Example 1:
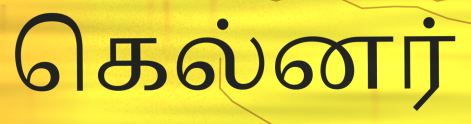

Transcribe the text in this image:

கெல்னர்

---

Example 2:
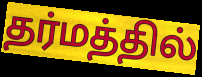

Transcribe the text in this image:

தர்மத்தில்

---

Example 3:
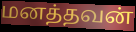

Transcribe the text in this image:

மனத்தவன்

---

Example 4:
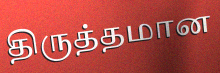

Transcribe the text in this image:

திருத்தமான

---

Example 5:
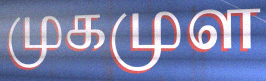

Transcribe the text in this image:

முகமுள